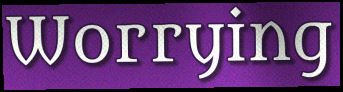
Worrying